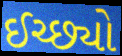
ઈચ્છ્યો